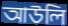
আউলি